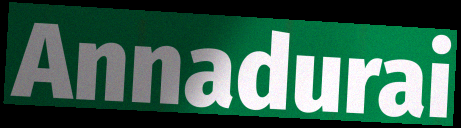
Annadurai